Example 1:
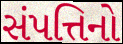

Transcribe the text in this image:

સંપત્તિનો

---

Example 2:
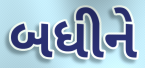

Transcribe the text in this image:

બધીને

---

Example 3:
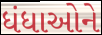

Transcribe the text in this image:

ધંધાઓને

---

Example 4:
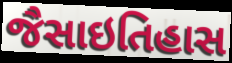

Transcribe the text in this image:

જૈસાઇતિહાસ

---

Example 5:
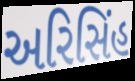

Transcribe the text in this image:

અરિસિંહ